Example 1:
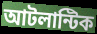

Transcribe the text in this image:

আটলান্টিক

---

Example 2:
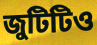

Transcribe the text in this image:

জুটিটিও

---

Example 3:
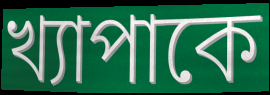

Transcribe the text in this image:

খ্যাপাকে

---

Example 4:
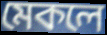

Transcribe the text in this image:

মেকলে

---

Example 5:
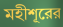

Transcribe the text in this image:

মহীশূরের